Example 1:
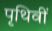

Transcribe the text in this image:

पृथिवीं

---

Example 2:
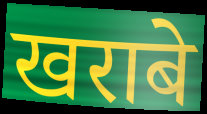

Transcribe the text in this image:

खराबे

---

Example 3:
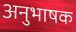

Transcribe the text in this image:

अनुभाषक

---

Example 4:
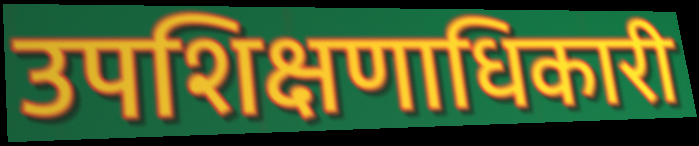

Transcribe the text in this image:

उपशिक्षणाधिकारी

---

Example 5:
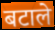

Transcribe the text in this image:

बटाले